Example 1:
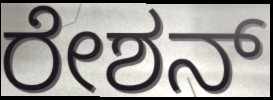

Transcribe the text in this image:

ರೇಶನ್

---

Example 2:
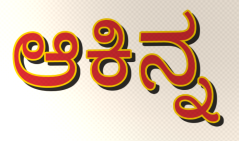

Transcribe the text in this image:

ಆಕಿನ್ನ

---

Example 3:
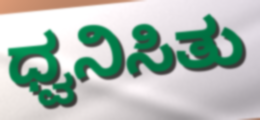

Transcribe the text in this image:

ಧ್ವನಿಸಿತು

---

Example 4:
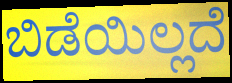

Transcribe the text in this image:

ಬಿಡೆಯಿಲ್ಲದೆ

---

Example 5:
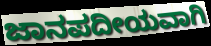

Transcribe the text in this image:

ಜಾನಪದೀಯವಾಗಿ